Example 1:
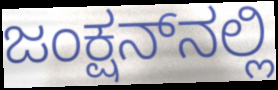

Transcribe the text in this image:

ಜಂಕ್ಷನ್‌ನಲ್ಲಿ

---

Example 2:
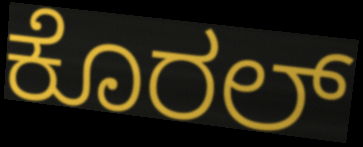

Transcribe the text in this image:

ಕೊರಲ್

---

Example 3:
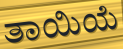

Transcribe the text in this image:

ತಾಯಿಯೆ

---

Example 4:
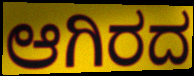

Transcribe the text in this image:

ಆಗಿರದ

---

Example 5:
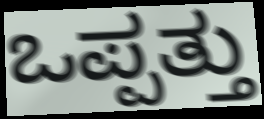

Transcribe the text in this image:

ಒಪ್ಪತ್ತು